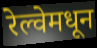
रेल्वेमधून